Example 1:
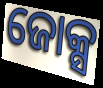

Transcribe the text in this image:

ଜୋକ୍ସ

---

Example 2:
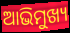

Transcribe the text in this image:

ଆଭିମୁଖ୍ୟ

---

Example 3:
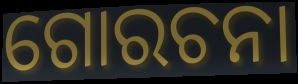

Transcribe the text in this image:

ଗୋରଚନା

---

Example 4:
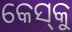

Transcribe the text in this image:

କେସ୍‌କୁ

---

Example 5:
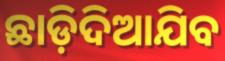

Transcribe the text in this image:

ଛାଡ଼ିଦିଆଯିବ